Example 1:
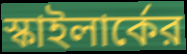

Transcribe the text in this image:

স্কাইলার্কের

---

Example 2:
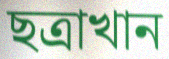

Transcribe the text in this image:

ছত্রাখান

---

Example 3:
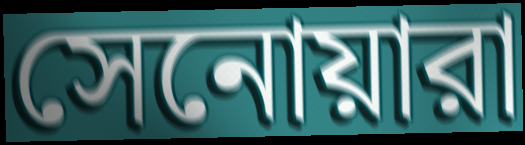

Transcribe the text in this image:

সেনোয়ারা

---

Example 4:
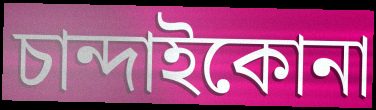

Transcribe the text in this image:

চান্দাইকোনা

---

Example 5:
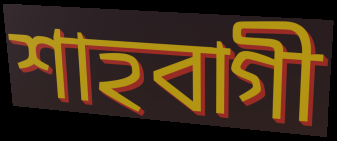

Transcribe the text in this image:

শাহবাগী